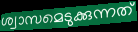
ശ്വാസമെടുക്കുന്നത്